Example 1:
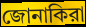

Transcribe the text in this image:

জোনাকিরা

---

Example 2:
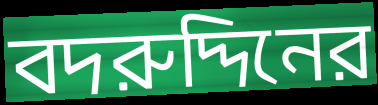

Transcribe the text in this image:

বদরুদ্দিনের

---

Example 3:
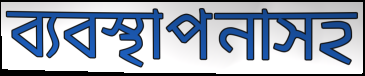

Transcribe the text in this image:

ব্যবস্থাপনাসহ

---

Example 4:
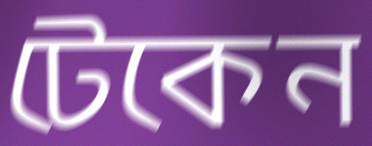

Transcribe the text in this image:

টেকেন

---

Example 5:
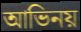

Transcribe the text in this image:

আভিনয়